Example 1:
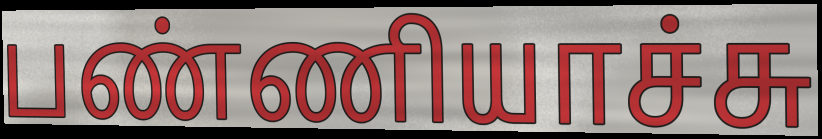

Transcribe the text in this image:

பண்ணியாச்சு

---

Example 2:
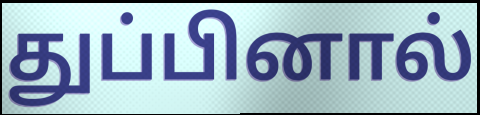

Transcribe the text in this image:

துப்பினால்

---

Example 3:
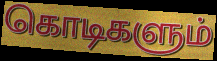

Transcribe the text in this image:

கொடிகளும்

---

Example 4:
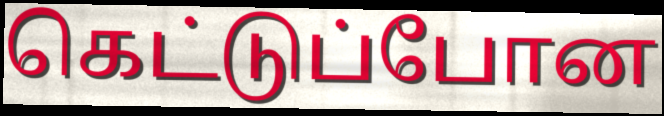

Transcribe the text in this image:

கெட்டுப்போன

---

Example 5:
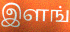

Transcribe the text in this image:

இளங்